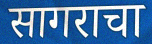
सागराचा